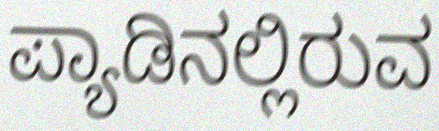
ಪ್ಯಾಡಿನಲ್ಲಿರುವ